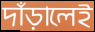
দাঁড়ালেই